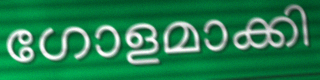
ഗോളമാക്കി